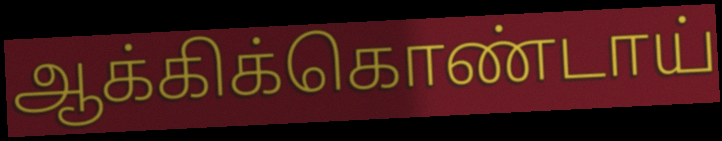
ஆக்கிக்கொண்டாய்